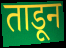
ताडून